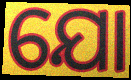
ଯୋ